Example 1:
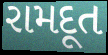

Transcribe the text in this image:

રામદૂત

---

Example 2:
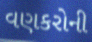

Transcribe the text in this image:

વણકરોની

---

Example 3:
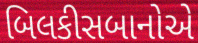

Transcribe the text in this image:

બિલકીસબાનોએ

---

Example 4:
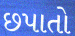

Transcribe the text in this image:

છપાતો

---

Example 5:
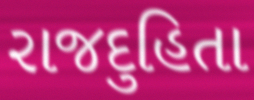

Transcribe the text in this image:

રાજદુહિતા